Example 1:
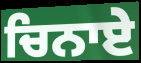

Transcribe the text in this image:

ਚਿਨਾਏ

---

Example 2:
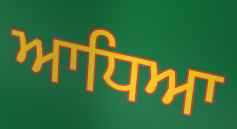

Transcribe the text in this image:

ਆਧਿਆ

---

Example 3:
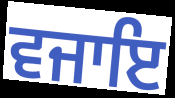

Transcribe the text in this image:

ਵਜਾਇ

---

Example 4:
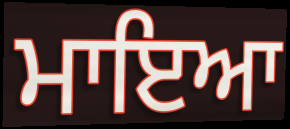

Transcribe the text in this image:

ਮਾਇਆ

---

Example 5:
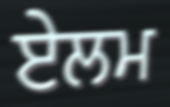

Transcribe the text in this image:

ਏਲਮ